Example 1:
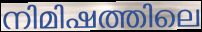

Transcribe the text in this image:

നിമിഷത്തിലെ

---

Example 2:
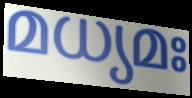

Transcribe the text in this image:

മധ്യമഃ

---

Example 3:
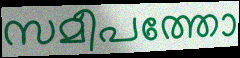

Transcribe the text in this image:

സമീപത്തോ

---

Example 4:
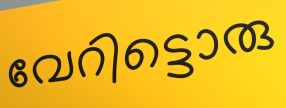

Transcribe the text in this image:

വേറിട്ടൊരു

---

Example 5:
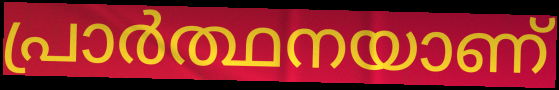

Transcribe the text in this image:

പ്രാർത്ഥനയാണ്